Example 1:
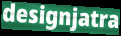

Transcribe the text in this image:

designjatra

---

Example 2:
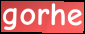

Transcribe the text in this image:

gorhe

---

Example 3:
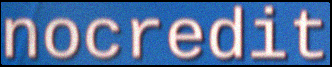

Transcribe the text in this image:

nocredit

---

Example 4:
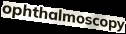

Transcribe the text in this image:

ophthalmoscopy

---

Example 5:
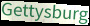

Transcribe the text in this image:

Gettysburg